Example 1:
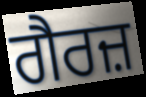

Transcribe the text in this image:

ਗੈਰਜ਼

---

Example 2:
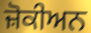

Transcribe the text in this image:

ਜ਼ੋਕੀਅਨ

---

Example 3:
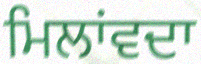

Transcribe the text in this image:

ਮਿਲਾਂਵਦਾ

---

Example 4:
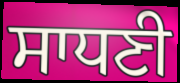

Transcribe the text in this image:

ਸਾਧਣੀ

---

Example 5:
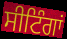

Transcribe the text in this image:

ਸੀਟਿੰਗਾਂ